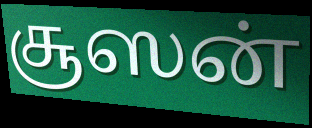
சூஸன்